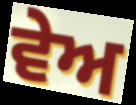
ਵੇਅ